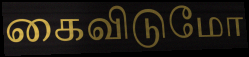
கைவிடுமோ